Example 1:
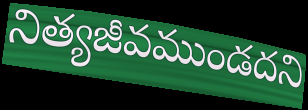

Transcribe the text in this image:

నిత్యజీవముండదని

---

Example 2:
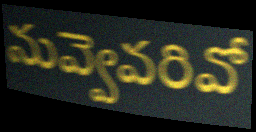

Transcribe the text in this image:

నువ్వెవరివో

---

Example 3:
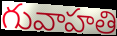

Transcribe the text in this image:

గువాహతి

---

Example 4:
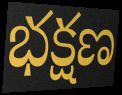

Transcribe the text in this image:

భక్షణ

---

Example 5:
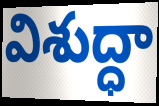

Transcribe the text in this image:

విశుద్ధా